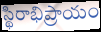
స్థిరాభిప్రాయం